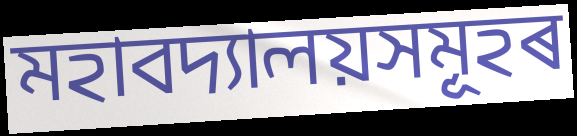
মহাবদ্যালয়সমূহৰ